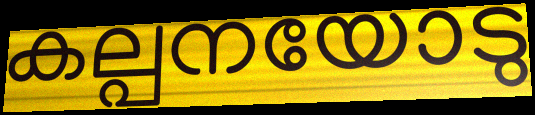
കല്പനയോടു